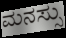
ಮನಸ್ಸು